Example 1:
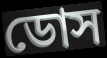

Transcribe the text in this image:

ডোস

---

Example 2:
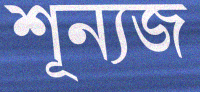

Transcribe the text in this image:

শূন্যজ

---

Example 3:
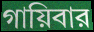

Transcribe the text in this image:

গায়িবার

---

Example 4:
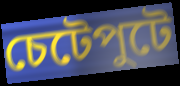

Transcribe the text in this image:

চেটেপুটে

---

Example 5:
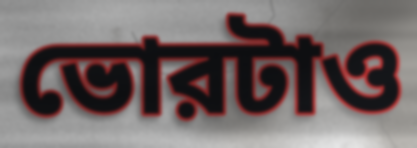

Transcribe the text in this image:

ভোরটাও